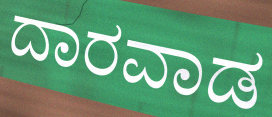
ದಾರವಾಡ